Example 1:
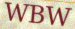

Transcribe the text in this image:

WBW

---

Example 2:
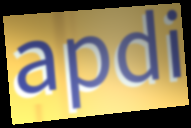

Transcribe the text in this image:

apdi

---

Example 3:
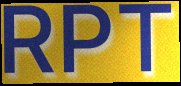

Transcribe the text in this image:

RPT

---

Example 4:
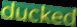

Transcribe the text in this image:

ducked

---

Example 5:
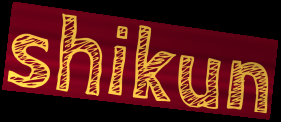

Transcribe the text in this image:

shikun